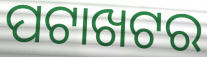
ପଟାଖଟର